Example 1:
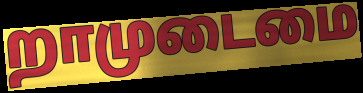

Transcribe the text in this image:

றாமுடைமை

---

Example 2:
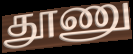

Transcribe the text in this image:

தூணு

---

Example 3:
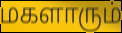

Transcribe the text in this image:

மகளாரும்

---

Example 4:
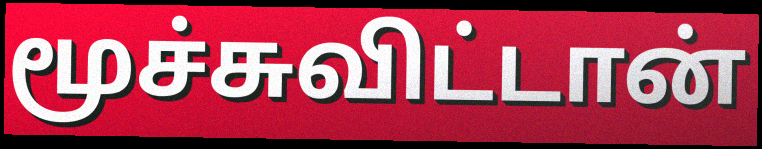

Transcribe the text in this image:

மூச்சுவிட்டான்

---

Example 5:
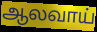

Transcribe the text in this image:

ஆலவாய்